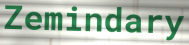
Zemindary